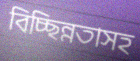
বিচ্ছিন্নতাসহ